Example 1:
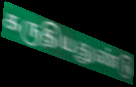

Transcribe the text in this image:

கருதியதுண்டு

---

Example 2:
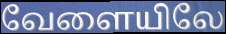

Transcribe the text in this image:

வேளையிலே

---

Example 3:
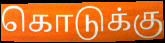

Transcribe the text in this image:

கொடுக்கு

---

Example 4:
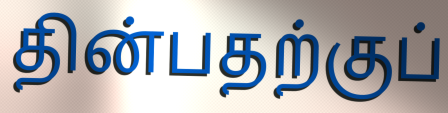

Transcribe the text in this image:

தின்பதற்குப்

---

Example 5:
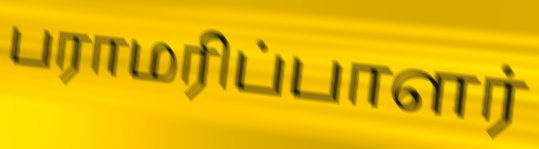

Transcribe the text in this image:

பராமரிப்பாளர்